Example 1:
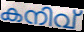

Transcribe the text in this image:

കനിവ്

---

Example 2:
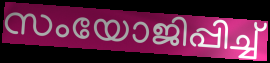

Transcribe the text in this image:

സംയോജിപ്പിച്ച്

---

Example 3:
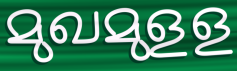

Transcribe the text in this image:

മുഖമുളള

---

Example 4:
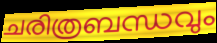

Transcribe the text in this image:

ചരിത്രബന്ധവും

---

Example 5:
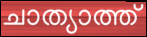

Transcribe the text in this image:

ചാത്യാത്ത്